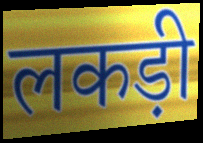
लकड़ी